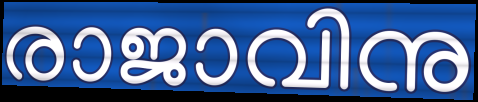
രാജാവിനു